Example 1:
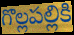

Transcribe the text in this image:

గొల్లపల్లికి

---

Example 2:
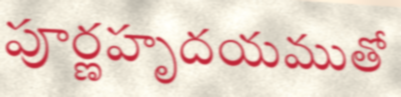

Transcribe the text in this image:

పూర్ణహృదయముతో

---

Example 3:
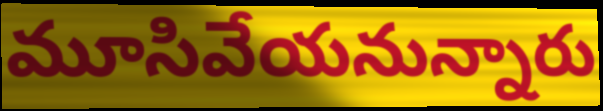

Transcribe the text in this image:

మూసివేయనున్నారు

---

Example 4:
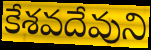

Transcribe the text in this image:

కేశవదేవుని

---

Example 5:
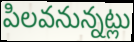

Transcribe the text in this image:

పిలవనున్నట్లు